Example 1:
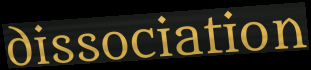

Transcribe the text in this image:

dissociation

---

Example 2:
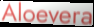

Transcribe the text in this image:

Aloevera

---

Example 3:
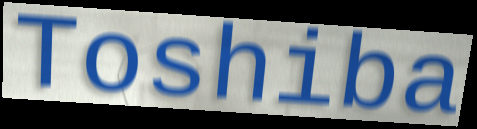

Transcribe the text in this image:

Toshiba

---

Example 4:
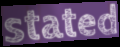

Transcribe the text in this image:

stated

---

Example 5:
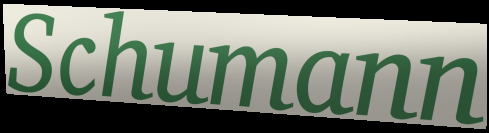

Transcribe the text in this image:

Schumann